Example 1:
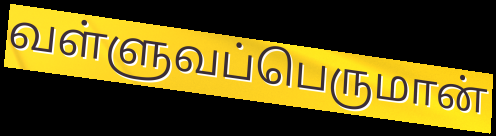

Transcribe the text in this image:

வள்ளுவப்பெருமான்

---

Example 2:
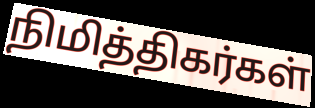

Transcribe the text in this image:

நிமித்திகர்கள்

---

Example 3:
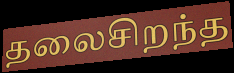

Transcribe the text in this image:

தலைசிறந்த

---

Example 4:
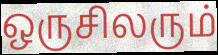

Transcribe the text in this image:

ஒருசிலரும்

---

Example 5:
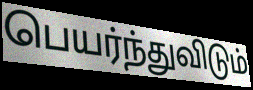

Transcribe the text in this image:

பெயர்ந்துவிடும்